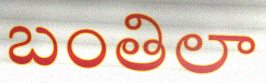
బంతిలా